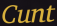
Cunt